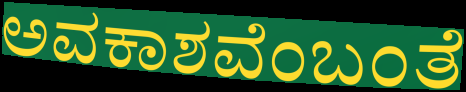
ಅವಕಾಶವೆಂಬಂತೆ